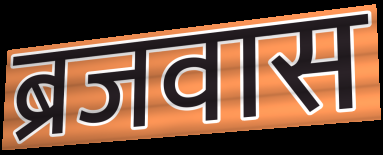
ब्रजवास